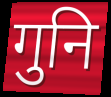
गुनि